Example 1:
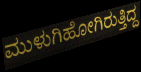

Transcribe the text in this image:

ಮುಳುಗಿಹೋಗಿರುತ್ತಿದ್ದ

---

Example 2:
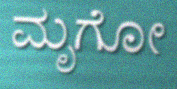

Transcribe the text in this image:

ಮೃಗೋ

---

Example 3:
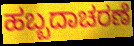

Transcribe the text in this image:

ಹಬ್ಬದಾಚರಣೆ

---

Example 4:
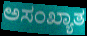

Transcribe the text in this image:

ಅಸಂಖ್ಯಾತ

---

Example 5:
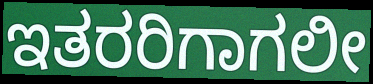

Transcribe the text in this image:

ಇತರರಿಗಾಗಲೀ